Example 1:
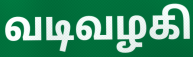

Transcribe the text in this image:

வடிவழகி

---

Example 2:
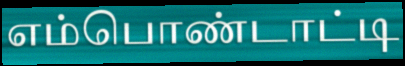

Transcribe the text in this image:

எம்பொண்டாட்டி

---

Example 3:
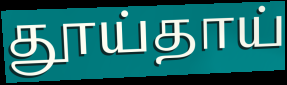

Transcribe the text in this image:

தூய்தாய்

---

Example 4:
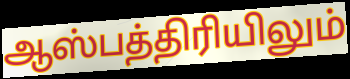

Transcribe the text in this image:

ஆஸ்பத்திரியிலும்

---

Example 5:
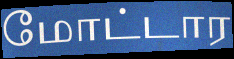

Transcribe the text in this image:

மோட்டார